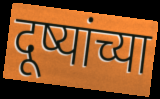
दूष्यांच्या